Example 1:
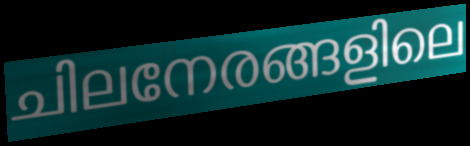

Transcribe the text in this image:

ചിലനേരങ്ങളിലെ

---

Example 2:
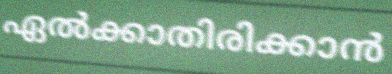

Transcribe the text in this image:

ഏൽക്കാതിരിക്കാൻ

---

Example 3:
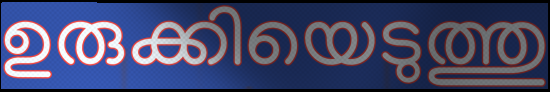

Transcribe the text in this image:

ഉരുക്കിയെടുത്തു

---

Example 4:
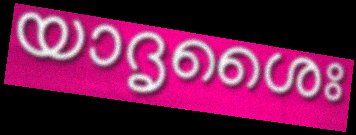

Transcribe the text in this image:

യാദൃശൈഃ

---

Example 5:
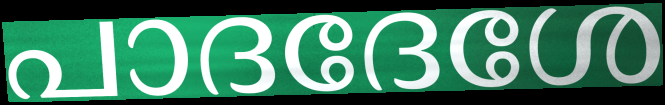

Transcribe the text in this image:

പാദദേശേ